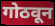
गोठवून